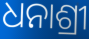
ଧନାଶ୍ରୀ